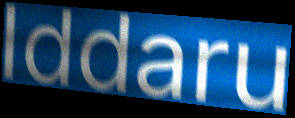
Iddaru